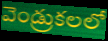
వెండ్రుకలలో